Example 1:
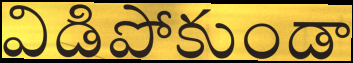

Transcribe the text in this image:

విడిపోకుండా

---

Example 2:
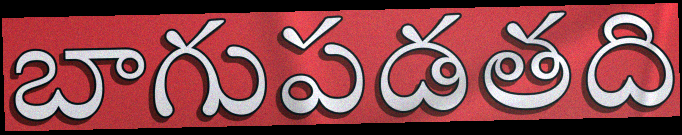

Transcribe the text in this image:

బాగుపడతది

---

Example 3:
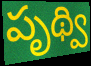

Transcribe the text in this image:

పృథ్వి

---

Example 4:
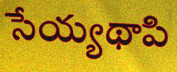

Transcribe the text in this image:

సేయ్యథాపి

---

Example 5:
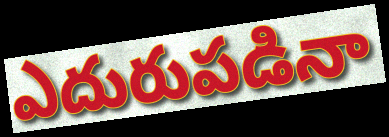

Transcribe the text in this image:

ఎదురుపడినా